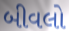
બીવલો